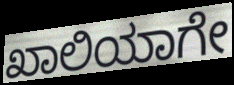
ಖಾಲಿಯಾಗೇ